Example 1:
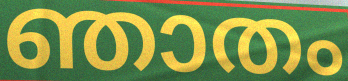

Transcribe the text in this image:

ഞാതം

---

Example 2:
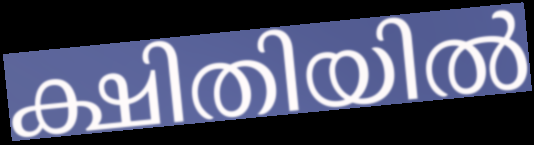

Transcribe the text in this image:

ക്ഷിതിയിൽ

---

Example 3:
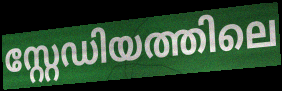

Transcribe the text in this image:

സ്റ്റേഡിയത്തിലെ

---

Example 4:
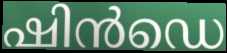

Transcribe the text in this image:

ഷിൻഡെ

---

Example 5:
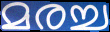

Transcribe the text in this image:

മരച്ച